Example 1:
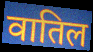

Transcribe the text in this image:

वातिल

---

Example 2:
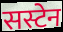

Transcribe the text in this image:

सस्टेन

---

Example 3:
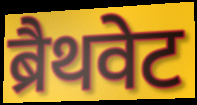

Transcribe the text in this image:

ब्रैथवेट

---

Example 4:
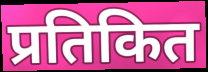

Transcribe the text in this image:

प्रतिकित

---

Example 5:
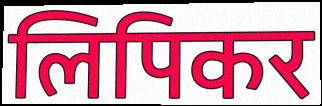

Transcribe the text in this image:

लिपिकर